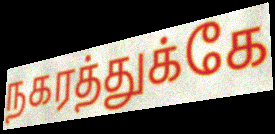
நகரத்துக்கே